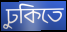
ঢুকিতে